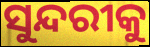
ସୁନ୍ଦରୀକୁ